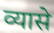
व्यासे